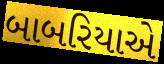
બાબરિયાએ